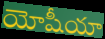
యోషీయా